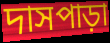
দাসপাড়া